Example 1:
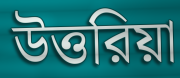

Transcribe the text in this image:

উত্তরিয়া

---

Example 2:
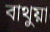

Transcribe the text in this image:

বাথুয়া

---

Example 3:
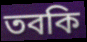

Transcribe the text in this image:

তবকি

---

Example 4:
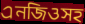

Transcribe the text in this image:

এনজিওসহ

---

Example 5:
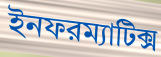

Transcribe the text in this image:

ইনফরম্যাটিক্স